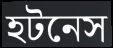
হটনেস